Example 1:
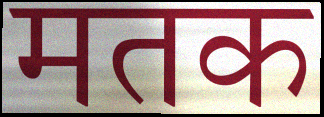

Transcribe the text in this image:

मतक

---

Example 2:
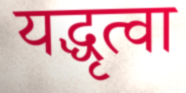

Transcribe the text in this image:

यद्धृत्वा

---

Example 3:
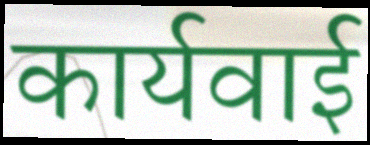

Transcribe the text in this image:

कार्यवाई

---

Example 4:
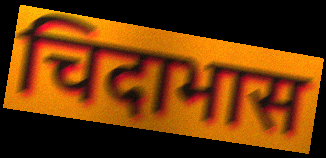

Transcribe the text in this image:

चिदाभास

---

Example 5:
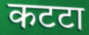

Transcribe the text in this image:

कटटा